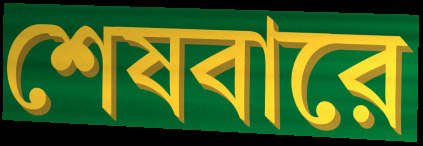
শেষবারে